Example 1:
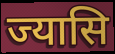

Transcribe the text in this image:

ज्यासि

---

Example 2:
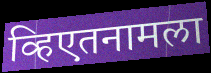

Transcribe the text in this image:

व्हिएतनामला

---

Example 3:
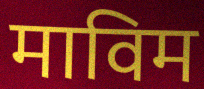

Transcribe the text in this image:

माविम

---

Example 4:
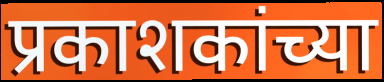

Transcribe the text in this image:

प्रकाशकांच्या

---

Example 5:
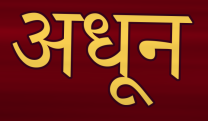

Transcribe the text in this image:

अधून